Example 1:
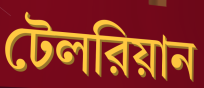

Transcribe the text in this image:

টেলরিয়ান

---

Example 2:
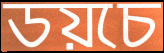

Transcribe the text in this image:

ডয়চে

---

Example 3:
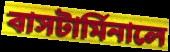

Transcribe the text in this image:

বাসটার্মিনালে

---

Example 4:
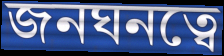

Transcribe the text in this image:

জনঘনত্বে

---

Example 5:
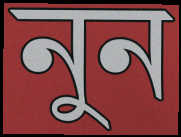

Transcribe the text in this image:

নুন